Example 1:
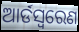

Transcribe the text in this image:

ଆର୍ଡସ୍ଵରେଣ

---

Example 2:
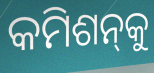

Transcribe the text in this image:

କମିଶନ୍‌କୁ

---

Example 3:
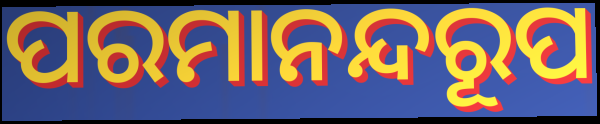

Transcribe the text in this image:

ପରମାନନ୍ଦରୂପ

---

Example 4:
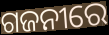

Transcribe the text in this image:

ଗଜନୀରେ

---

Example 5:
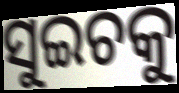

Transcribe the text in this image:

ସୁଇଚକୁ